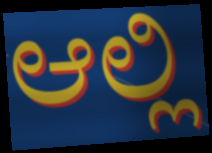
ಆಲ್ಲಿ